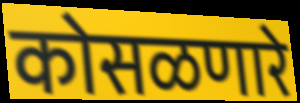
कोसळणारे